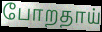
போறதாய்